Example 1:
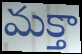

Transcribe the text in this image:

మక్తా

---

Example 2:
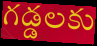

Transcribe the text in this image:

గడ్డలకు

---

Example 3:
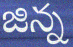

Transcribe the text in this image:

జిన్న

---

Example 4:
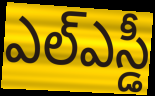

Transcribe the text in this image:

ఎల్ఎస్డీ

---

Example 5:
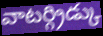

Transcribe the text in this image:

వాటర్గ్రిడ్కు